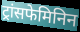
ट्रांसफेमिनिन